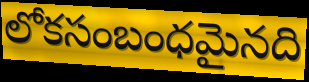
లోకసంబంధమైనది